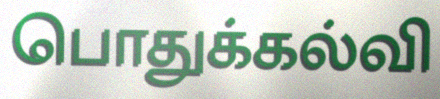
பொதுக்கல்வி